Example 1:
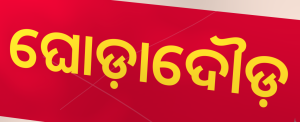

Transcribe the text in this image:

ଘୋଡ଼ାଦୌଡ଼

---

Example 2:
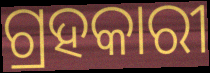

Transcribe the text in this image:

ଗ୍ରହକାରୀ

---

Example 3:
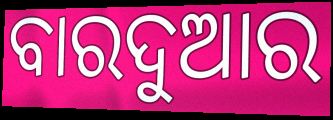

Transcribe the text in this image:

ବାରଦୁଆର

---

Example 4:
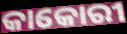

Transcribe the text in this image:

କାକୋରୀ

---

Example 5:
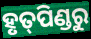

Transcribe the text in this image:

ହୃତ୍‌ପିଣ୍ଡରୁ